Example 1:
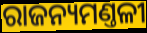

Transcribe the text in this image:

ରାଜନ୍ୟମଣ୍ତଳୀ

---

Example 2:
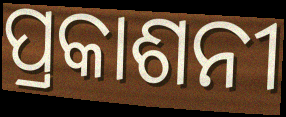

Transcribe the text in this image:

ପ୍ରକାଶନୀ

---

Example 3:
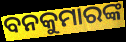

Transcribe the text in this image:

ବନକୁମାରଙ୍କ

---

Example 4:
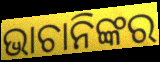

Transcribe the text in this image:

ଭାଚାନିଙ୍କର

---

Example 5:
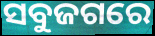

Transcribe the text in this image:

ସବୁଜଗରେ